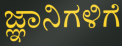
ಜ್ಞಾನಿಗಳಿಗೆ